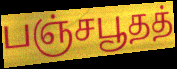
பஞ்சபூதத்